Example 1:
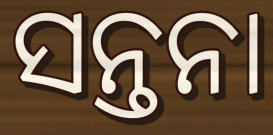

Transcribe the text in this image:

ସନ୍ତନା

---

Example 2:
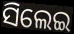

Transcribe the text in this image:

ସିଲେଇ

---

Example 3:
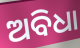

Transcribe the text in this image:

ଅବିଧା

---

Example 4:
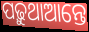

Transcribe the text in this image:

ପଢ଼ୁଥାଆନ୍ତେ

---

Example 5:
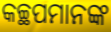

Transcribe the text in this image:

କଚ୍ଛପମାନଙ୍କ